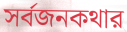
সর্বজনকথার